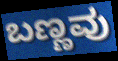
ಬಣ್ಣವು